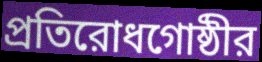
প্রতিরোধগোষ্ঠীর